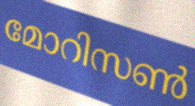
മോറിസൺ